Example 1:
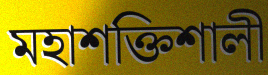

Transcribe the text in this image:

মহাশক্তিশালী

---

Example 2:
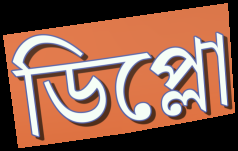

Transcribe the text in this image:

ডিপ্লো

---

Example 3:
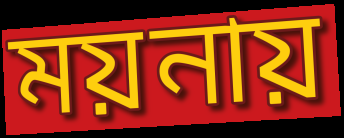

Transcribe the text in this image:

ময়নায়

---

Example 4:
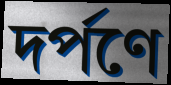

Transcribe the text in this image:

দর্পণে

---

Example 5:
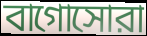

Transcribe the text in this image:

বাগোসোরা